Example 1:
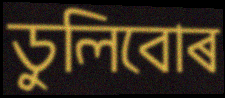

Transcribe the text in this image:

ডুলিবোৰ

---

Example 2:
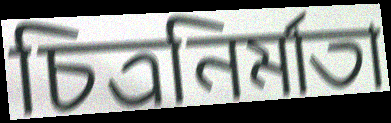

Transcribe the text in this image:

চিত্ৰনিৰ্মাতা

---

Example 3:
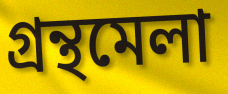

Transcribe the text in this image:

গ্ৰন্থমেলা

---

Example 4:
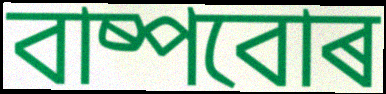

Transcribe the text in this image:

বাষ্পবোৰ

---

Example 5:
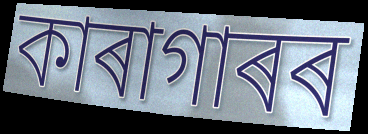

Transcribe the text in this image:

কাৰাগাৰৰ